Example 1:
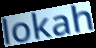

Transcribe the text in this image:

lokah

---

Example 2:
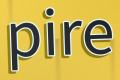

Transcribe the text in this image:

pire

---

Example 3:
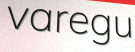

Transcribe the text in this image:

varegu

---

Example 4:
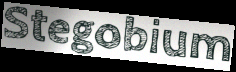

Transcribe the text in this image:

Stegobium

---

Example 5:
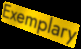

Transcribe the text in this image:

Exemplary